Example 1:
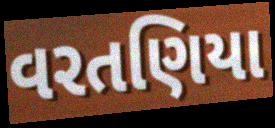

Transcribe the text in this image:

વરતણિયા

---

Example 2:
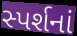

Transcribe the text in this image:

સ્પર્શનાં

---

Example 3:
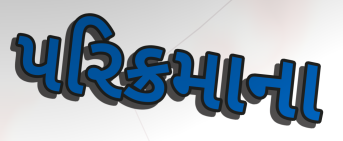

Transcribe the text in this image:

પરિક્રમાના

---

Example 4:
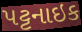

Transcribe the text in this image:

પટ્ટનાઇક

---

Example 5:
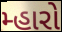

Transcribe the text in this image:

મ્હારો